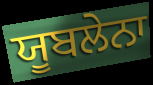
ਯੂਬਲੇਨਾ